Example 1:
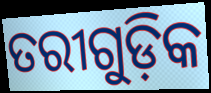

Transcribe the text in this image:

ତରୀଗୁଡ଼ିକ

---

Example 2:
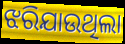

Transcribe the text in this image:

ଝରିଯାଉଥିଲା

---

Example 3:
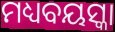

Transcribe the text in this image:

ମଧ୍ୟବୟସ୍କା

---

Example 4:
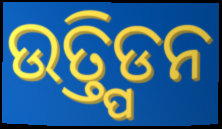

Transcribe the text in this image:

ଉତ୍ତ୍ପିଡନ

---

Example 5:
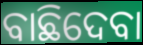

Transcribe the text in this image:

ବାଛିଦେବା